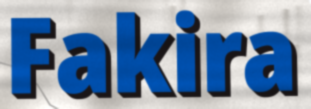
Fakira